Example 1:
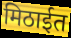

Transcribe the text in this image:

मिठाईत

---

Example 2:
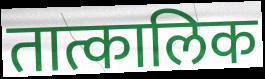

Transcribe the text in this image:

तात्कालिक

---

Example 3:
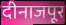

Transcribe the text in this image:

दीनाजपूर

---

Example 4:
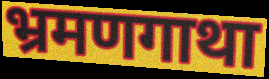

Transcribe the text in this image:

भ्रमणगाथा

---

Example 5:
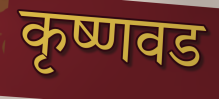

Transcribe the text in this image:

कृष्णवड